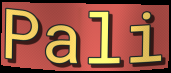
Pali